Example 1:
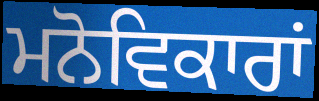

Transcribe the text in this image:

ਮਨੋਵਿਕਾਰਾਂ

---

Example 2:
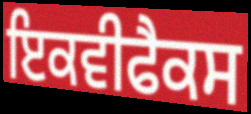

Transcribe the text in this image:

ਇਕਵੀਫੈਕਸ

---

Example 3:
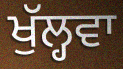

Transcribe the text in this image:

ਖੁੱਲ੍ਹਵਾ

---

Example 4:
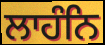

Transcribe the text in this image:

ਲਾਹੰਨਿ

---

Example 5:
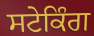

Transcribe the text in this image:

ਸਟੇਕਿੰਗ